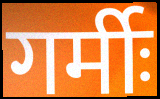
गर्मीः